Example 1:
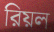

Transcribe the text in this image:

রিয়ল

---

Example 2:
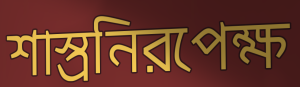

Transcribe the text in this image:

শাস্ত্রনিরপেক্ষ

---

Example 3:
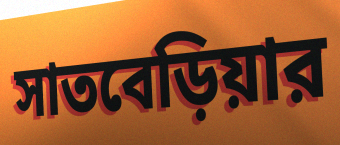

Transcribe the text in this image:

সাতবেড়িয়ার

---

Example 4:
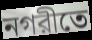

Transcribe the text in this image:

নগরীতে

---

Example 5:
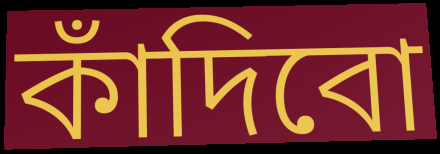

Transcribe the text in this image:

কাঁদিবো